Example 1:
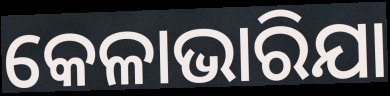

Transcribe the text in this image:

କେଳାଭାରିଯା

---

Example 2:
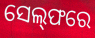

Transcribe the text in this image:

ସେଲ୍‌ଫରେ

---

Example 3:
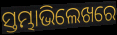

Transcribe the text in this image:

ସ୍ତମ୍ଭାଭିଲେଖରେ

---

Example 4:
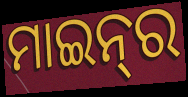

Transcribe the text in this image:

ମାଇନ୍‍ର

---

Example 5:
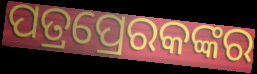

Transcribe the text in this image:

ପତ୍ରପ୍ରେରକଙ୍କର